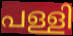
പള്ളി